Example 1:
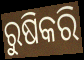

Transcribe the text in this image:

ରୁଷିକରି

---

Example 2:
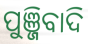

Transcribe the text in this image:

ପୁଞ୍ଜିବାଦି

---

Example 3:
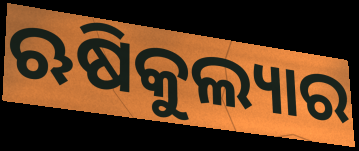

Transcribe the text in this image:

ଋଷିକୁଲ୍ୟାର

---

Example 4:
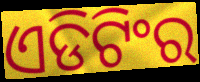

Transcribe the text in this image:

ଏଡିଟିଂର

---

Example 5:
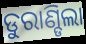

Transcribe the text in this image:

ଡୁରାଣ୍ଡିଲା